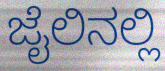
ಜೈಲಿನಲ್ಲಿ